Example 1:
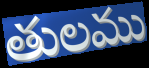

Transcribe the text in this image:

తులము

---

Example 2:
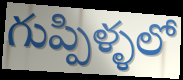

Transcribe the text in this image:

గుప్పిళ్ళలో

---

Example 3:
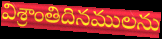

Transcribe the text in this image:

విశ్రాంతిదినములను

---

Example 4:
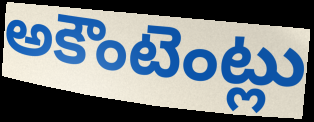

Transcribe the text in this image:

అకౌంటెంట్లు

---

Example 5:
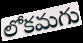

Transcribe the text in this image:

లోకమగు